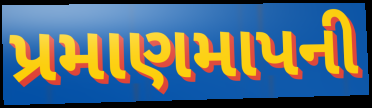
પ્રમાણમાપની